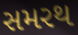
સમરથ